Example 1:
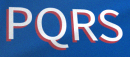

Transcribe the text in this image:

PQRS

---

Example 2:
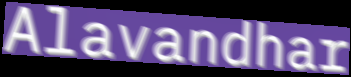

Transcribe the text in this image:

Alavandhar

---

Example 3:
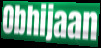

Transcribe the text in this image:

Obhijaan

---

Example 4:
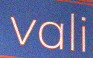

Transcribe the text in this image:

vali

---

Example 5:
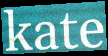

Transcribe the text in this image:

kate